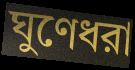
ঘুণেধরা